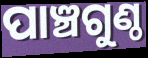
ପାଞ୍ଚଗୁଣ୍ଠ